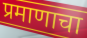
प्रमाणाचा